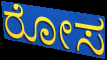
ರೋಸ